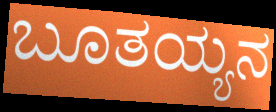
ಬೂತಯ್ಯನ